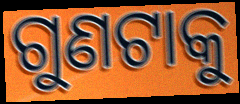
ଗୁଣଟାକୁ